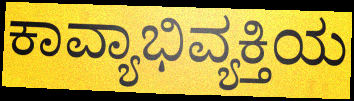
ಕಾವ್ಯಾಭಿವ್ಯಕ್ತಿಯ